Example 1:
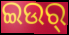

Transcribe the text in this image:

ଇଉର୍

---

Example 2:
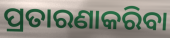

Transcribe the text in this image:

ପ୍ରତାରଣାକରିବା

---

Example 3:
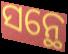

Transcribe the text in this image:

ସନ୍ଥେ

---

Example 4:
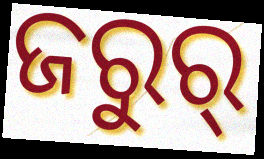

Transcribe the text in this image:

ଜରୁର୍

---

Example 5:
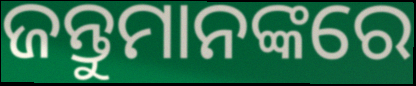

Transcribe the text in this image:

ଜନ୍ତୁମାନଙ୍କରେ